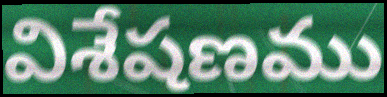
విశేషణము